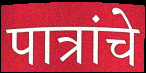
पात्रांचे